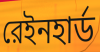
রেইনহার্ড